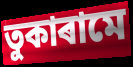
তুকাৰামে